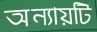
অন্যায়টি